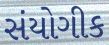
સંયોગીક